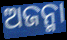
ଅଜନ୍ମା